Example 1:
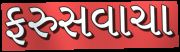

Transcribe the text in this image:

ફરુસવાચા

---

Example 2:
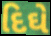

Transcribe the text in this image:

દિઘે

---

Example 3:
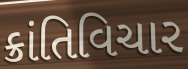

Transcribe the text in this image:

ક્રાંતિવિચાર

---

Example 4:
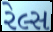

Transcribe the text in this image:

રેલ્સ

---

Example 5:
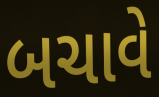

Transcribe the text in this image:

બચાવે